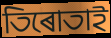
তিৰোতাই